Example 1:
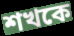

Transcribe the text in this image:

শখকে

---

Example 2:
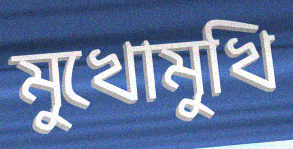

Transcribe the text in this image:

মুখোমুখি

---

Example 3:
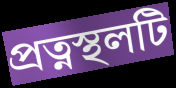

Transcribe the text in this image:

প্রত্নস্থলটি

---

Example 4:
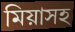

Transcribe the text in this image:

মিয়াসহ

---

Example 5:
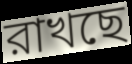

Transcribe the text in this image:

রাখছে